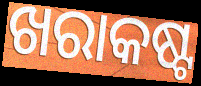
ଖରାକଷ୍ଟ